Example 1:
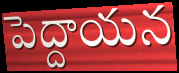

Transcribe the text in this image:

పెద్దాయన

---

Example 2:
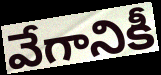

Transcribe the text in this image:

వేగానికీ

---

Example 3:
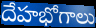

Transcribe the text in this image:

దేహభోగాలు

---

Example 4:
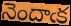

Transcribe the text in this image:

నెందాఁక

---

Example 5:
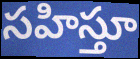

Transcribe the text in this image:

సహిస్తూ